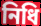
নিধি